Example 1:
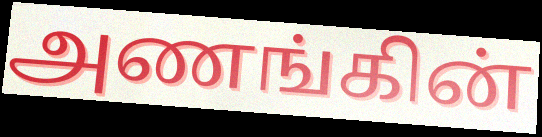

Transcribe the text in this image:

அணங்கின்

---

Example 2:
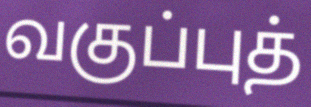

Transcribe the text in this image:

வகுப்புத்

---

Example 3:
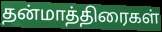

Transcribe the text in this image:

தன்மாத்திரைகள்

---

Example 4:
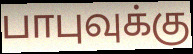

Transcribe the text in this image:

பாபுவுக்கு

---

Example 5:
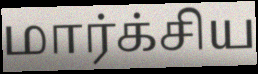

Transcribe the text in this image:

மார்க்சிய